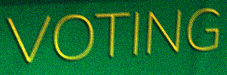
VOTING